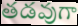
తడవుగా